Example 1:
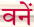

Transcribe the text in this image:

वनें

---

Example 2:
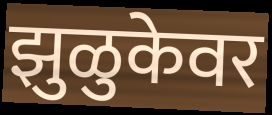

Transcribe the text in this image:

झुळुकेवर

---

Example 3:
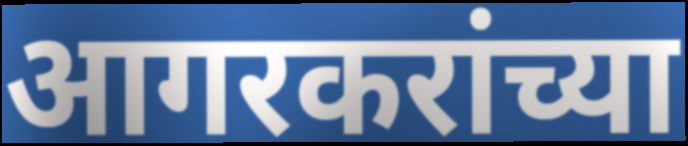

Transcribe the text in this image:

आगरकरांच्या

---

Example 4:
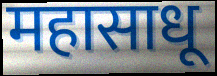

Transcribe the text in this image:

महासाधू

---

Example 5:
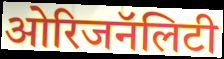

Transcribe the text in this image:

ओरिजनॅलिटी